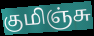
குமிஞ்சு